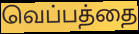
வெப்பத்தை